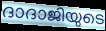
ദാദാജിയുടെ